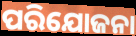
ପରିଯୋଜନା